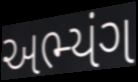
અભ્યંગ